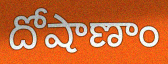
దోషాణాం